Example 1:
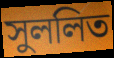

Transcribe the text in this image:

সুললিত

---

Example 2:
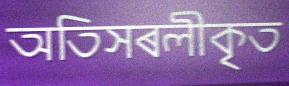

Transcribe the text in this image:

অতিসৰলীকৃত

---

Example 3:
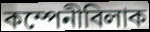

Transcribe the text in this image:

কম্পেনীবিলাক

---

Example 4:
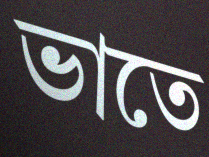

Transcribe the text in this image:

ভাতে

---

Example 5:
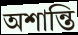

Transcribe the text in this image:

অশান্তি